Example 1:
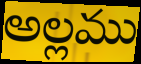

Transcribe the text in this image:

అల్లము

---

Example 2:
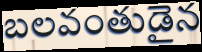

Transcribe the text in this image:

బలవంతుడైన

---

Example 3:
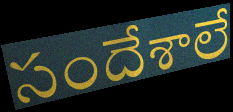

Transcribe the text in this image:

సందేశాలే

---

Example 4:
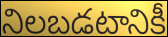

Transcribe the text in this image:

నిలబడటానికీ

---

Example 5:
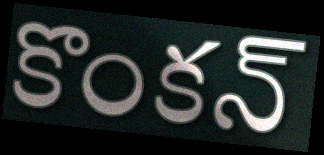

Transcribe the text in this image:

కొంకన్